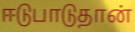
ஈடுபாடுதான்